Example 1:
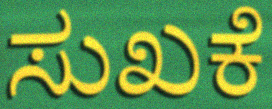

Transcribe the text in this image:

ಸುಖಕೆ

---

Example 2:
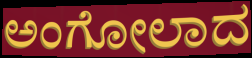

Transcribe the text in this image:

ಅಂಗೋಲಾದ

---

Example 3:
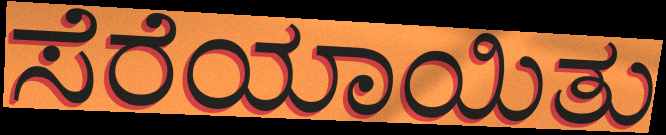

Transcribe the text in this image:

ಸೆರೆಯಾಯಿತು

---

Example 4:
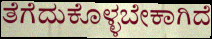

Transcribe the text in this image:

ತೆಗೆದುಕೊಳ್ಳಬೇಕಾಗಿದೆ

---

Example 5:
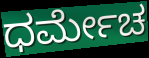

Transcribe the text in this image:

ಧರ್ಮೇಚ